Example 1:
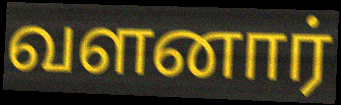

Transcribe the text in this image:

வளனார்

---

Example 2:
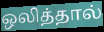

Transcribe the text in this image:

ஒலித்தால்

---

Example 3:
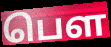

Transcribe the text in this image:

பெள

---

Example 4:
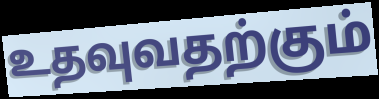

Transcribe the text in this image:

உதவுவதற்கும்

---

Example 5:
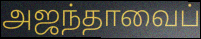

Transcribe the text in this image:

அஜந்தாவைப்